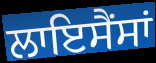
ਲਾਇਸੈਂਸਾਂ